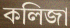
কলিজা